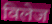
विलेज